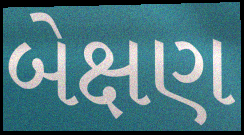
બેક્ષણ